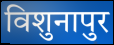
विशुनापुर